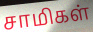
சாமிகள்